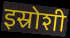
इस्रोशी